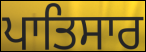
ਪਾਤਿਸਾਰ